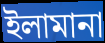
ইলামানা